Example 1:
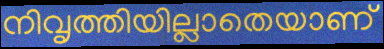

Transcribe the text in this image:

നിവൃത്തിയില്ലാതെയാണ്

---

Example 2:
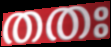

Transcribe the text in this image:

തതഃ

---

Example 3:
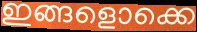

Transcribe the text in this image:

ഇങ്ങളൊക്കെ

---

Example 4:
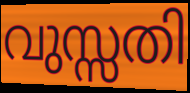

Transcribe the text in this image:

വുസ്സതി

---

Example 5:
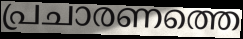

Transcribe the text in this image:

പ്രചാരണത്തെ